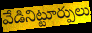
వేడినిట్టూర్పులు